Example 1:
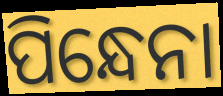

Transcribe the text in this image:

ପିନ୍ଧେନା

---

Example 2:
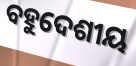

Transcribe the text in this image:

ବହୁଦେଶୀୟ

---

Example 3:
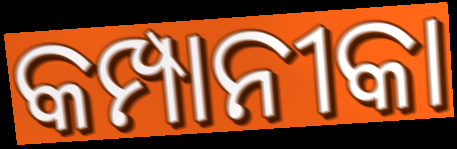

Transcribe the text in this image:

କମ୍ପାନୀକା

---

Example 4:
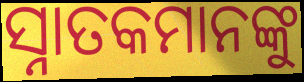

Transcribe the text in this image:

ସ୍ନାତକମାନଙ୍କୁ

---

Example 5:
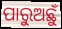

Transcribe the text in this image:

ପାରୁଅଛୁଁ